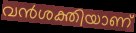
വൻശക്തിയാണ്